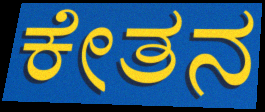
ಕೇತನ